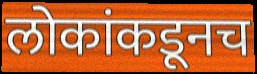
लोकांकडूनच